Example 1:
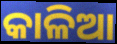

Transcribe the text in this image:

କାଳିଆ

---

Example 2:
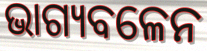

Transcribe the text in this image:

ଭାଗ୍ୟବଳେନ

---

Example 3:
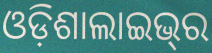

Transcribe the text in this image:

ଓଡ଼ିଶାଲାଇଭ୍‌ର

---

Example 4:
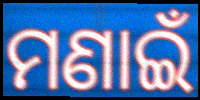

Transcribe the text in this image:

ମଣାଇଁ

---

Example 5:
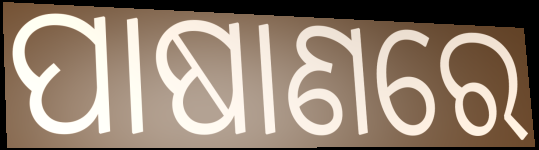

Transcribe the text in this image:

ପାଷାଣରେ